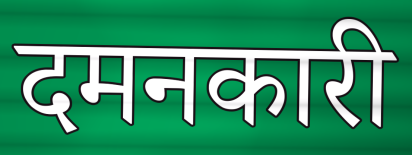
दमनकारी